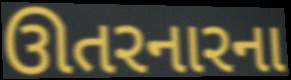
ઊતરનારના